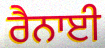
ਰੈਨਾਈ